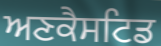
ਅਣਕੈਸਟਿਡ